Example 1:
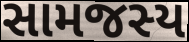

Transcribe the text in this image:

સામજસ્ય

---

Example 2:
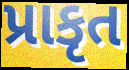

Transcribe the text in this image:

પ્રાકૃત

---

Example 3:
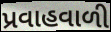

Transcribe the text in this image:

પ્રવાહવાળી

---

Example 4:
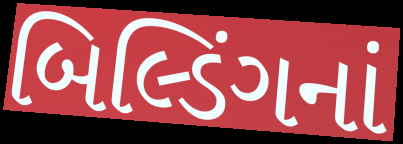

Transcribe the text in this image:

બિલ્ડિંગનાં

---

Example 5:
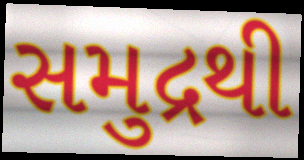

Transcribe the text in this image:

સમુદ્રથી